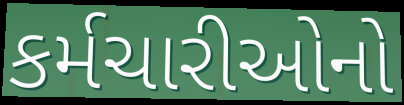
કર્મચારીઓનો